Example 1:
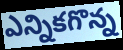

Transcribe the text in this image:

ఎన్నికగొన్న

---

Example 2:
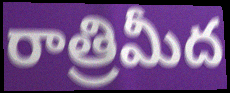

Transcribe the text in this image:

రాత్రిమీద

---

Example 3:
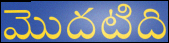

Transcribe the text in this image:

మొదటిది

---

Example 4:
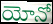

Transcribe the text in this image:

యోనో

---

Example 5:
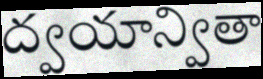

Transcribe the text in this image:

ద్వయాన్వితా